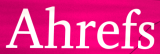
Ahrefs